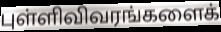
புள்ளிவிவரங்களைக்